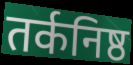
तर्कनिष्ठ